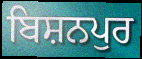
ਬਿਸ਼ਨਪੁਰ